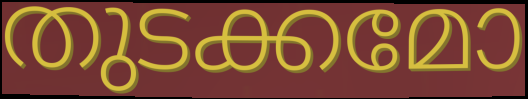
തുടക്കമോ